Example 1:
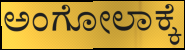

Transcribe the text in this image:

ಅಂಗೋಲಾಕ್ಕೆ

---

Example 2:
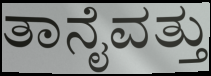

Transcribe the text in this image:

ತಾನೈವತ್ತು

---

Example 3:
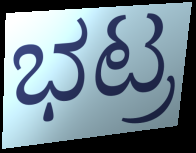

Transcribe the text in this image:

ಭಟ್ರ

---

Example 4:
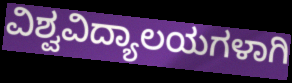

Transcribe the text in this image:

ವಿಶ್ವವಿದ್ಯಾಲಯಗಳಾಗಿ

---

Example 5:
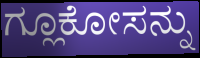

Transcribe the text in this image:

ಗ್ಲೂಕೋಸನ್ನು